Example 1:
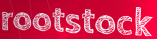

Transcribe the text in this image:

rootstock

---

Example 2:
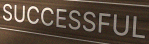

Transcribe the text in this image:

SUCCESSFUL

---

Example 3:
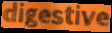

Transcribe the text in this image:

digestive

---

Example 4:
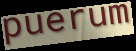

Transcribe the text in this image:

puerum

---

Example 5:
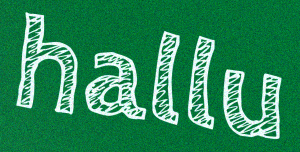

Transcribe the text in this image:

hallu